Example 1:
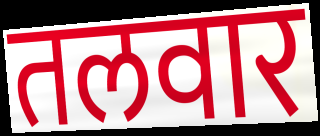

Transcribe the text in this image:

तलवार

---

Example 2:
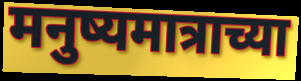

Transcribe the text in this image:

मनुष्यमात्राच्या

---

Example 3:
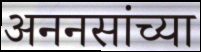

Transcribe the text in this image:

अननसांच्या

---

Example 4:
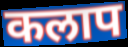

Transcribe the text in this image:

कलाप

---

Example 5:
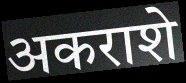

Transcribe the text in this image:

अकराशे